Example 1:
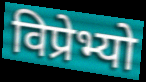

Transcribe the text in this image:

विप्रेभ्यो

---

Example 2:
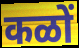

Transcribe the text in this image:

कळों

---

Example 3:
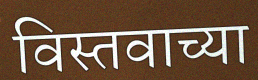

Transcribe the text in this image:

विस्तवाच्या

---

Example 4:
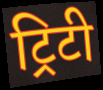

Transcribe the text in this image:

ट्रिटी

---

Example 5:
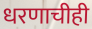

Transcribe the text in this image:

धरणाचीही